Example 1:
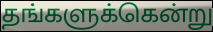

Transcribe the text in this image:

தங்களுக்கென்று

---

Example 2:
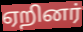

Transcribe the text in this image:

ஏறினர்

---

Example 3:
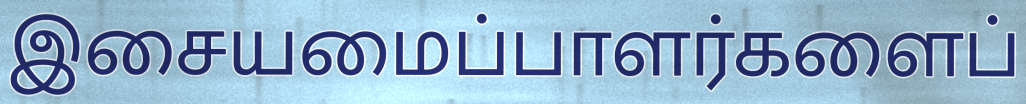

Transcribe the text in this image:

இசையமைப்பாளர்களைப்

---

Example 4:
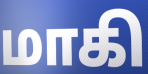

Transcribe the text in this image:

மாகி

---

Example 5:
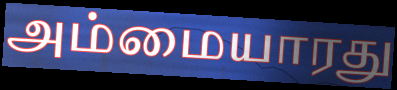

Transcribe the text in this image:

அம்மையாரது